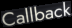
Callback